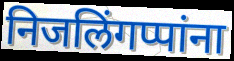
निजलिंगप्पांना